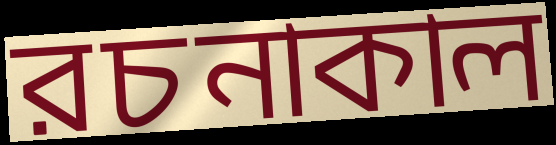
রচনাকাল